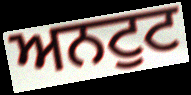
ਅਨਟੁਟ